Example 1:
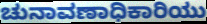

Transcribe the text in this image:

ಚುನಾವಣಾಧಿಕಾರಿಯು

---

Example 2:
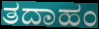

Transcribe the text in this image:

ತದಾಹಂ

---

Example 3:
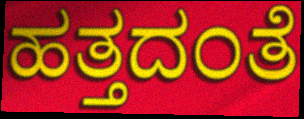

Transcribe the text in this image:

ಹತ್ತದಂತೆ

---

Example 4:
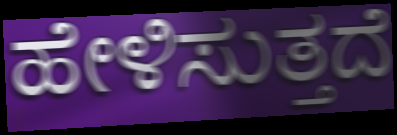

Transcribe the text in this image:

ಹೇಳಿಸುತ್ತದೆ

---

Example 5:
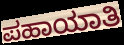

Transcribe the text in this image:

ಪಹಾಯಾತಿ